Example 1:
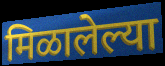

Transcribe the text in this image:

मिळालेल्या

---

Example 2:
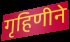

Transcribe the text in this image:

गृहिणीने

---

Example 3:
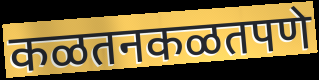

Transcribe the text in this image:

कळतनकळतपणे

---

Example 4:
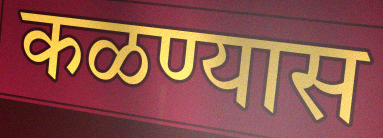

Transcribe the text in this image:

कळण्यास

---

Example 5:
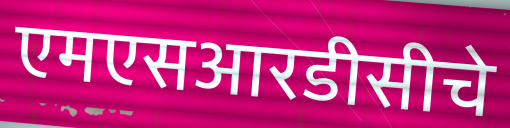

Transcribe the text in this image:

एमएसआरडीसीचे